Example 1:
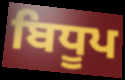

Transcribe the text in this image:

ਬਿਧੂਪ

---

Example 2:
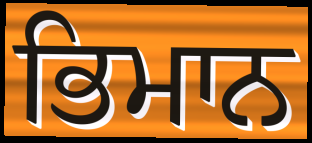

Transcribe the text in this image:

ਭਿਮਾਨ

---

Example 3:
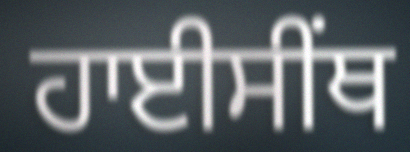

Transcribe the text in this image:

ਹਾਈਸੀੰਥ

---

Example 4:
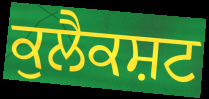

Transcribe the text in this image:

ਕੁਲੈਕਸ਼ਟ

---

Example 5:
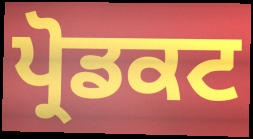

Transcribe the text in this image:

ਪ੍ਰੋਡਕਟ